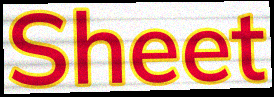
Sheet